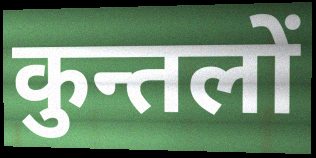
कुन्तलों